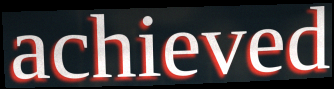
achieved